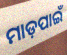
ମାଡ଼ପାଇଁ